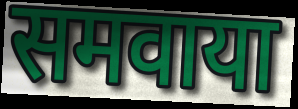
समवाया